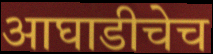
आघाडीचेच